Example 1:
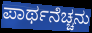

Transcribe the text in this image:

ಪಾರ್ಥನೆಚ್ಚನು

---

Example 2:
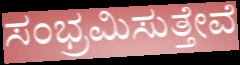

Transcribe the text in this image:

ಸಂಭ್ರಮಿಸುತ್ತೇವೆ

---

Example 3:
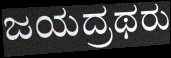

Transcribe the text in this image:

ಜಯದ್ರಥರು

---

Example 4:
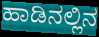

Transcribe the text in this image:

ಹಾಡಿನಲ್ಲಿನ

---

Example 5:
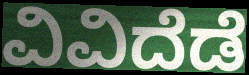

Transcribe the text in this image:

ವಿವಿದೆಡೆ